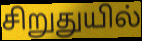
சிறுதுயில்